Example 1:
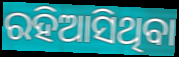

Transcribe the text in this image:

ରହିଆସିଥିବା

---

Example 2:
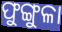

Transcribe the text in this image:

ଫୁଙ୍ଗୁଳା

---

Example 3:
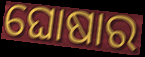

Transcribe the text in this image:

ଘୋଷାର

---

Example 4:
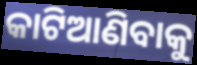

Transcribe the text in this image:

କାଟିଆଣିବାକୁ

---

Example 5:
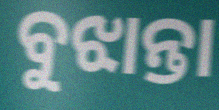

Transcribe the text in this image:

ବୁଝାନ୍ତା